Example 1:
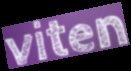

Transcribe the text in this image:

viten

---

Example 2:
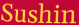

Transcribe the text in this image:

Sushin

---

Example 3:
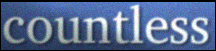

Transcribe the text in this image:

countless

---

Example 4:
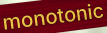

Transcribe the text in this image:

monotonic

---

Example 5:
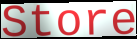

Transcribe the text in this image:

Store